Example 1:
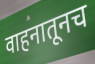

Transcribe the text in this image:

वाहनातूनच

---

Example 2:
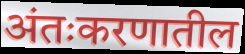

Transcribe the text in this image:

अंतःकरणातील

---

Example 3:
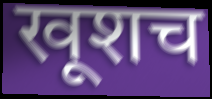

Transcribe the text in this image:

खूशच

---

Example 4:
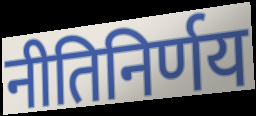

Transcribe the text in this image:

नीतिनिर्णय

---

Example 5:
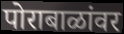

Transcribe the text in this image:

पोराबाळांवर